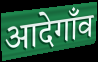
आदेगाँव